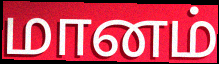
மானம்